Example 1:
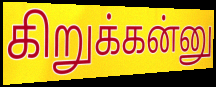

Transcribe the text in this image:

கிறுக்கன்னு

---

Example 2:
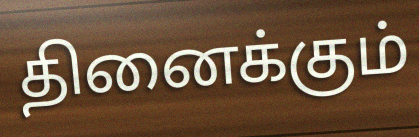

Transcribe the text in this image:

தினைக்கும்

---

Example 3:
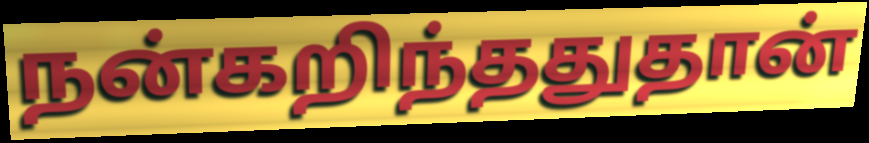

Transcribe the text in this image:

நன்கறிந்ததுதான்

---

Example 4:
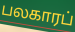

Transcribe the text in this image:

பலகாரப்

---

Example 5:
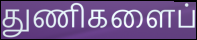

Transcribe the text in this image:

துணிகளைப்